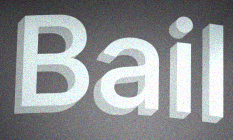
Bail